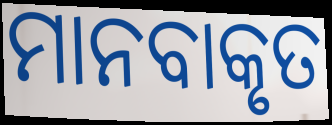
ମାନବାକୃତ